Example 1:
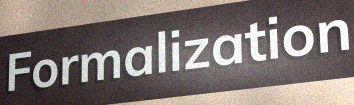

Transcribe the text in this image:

Formalization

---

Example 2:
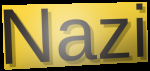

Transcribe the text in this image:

Nazi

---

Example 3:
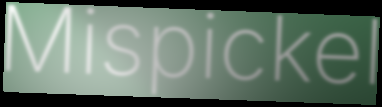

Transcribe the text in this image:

Mispickel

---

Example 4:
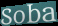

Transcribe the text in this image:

Soba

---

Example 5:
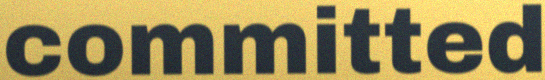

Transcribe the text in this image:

committed